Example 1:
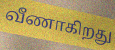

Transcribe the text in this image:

வீணாகிறது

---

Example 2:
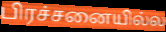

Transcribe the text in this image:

பிரச்சனையில்ல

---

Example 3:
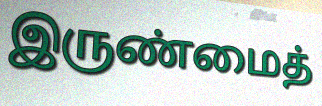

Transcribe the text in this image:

இருண்மைத்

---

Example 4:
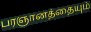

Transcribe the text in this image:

பரஞானத்தையும்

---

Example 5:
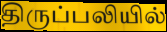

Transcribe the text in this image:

திருப்பலியில்